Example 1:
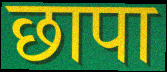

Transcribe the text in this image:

छापा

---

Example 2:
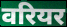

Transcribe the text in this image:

वरियर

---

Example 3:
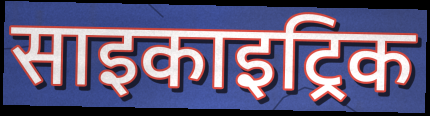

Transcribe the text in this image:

साइकाइट्रिक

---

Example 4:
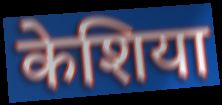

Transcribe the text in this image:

केशिया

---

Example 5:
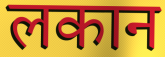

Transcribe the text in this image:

लकान